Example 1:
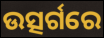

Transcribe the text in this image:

ଉତ୍ସର୍ଗରେ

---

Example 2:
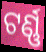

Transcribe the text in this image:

ଟର୍ଣ୍ଣ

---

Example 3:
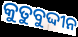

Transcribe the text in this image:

କୁତୁବୁଦ୍ଦୀନ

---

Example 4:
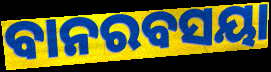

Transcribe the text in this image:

ବାନରବସୟା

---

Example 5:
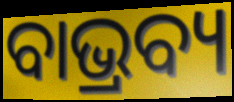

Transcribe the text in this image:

ବାଭ୍ରବ୍ୟ